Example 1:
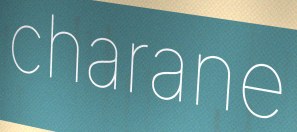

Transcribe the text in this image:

charane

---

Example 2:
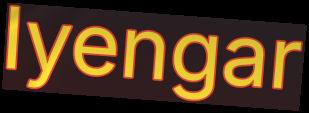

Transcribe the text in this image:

Iyengar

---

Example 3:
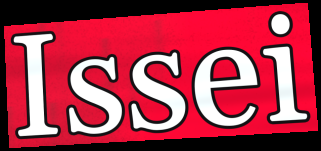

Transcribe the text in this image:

Issei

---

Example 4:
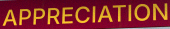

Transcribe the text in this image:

APPRECIATION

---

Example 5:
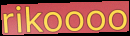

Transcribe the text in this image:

rikoooo